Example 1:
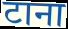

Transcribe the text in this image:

टाना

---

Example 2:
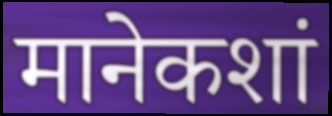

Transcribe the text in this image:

मानेकशां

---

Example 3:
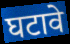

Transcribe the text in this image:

घटावे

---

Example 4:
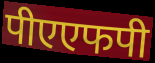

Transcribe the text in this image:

पीएएफपी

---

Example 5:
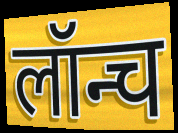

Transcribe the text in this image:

लॉन्च